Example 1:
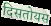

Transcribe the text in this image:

दिसतोयस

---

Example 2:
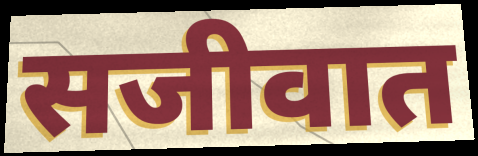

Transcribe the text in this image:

सजीवात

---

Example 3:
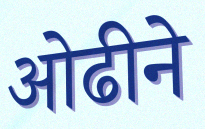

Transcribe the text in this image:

ओढीने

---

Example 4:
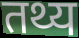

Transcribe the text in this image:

तथ्य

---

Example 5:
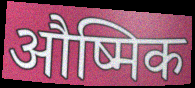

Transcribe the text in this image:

औष्मिक